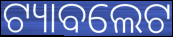
ଟ୍ୟାବଲେଟ